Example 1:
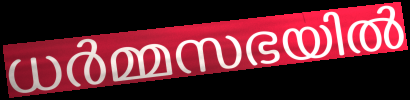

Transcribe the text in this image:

ധർമ്മസഭയിൽ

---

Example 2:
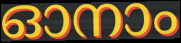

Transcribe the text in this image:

ഓനാം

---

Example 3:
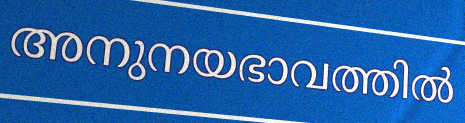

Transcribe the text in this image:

അനുനയഭാവത്തിൽ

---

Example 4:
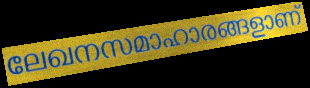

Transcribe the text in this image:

ലേഖനസമാഹാരങ്ങളാണ്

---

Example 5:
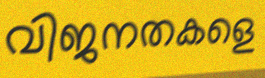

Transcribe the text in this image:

വിജനതകളെ